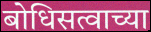
बोधिसत्वाच्या